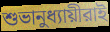
শুভানুধ্যায়ীরাই